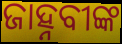
ଜାହ୍ନବୀଙ୍କ